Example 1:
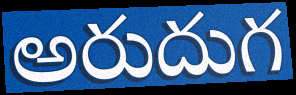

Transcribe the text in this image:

అరుదుగ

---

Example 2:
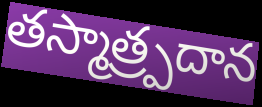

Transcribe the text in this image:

తస్మాత్ర్పదాన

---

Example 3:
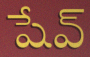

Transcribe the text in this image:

షేవ్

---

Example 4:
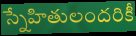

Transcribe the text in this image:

స్నేహితులందరికీ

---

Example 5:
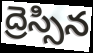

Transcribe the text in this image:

ద్రెస్సిన